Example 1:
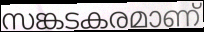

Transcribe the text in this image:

സങ്കടകരമാണ്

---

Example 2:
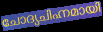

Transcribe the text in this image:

ചോദ്യചിഹ്നമായി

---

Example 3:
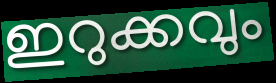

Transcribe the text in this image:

ഇറുക്കവും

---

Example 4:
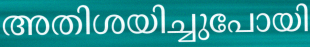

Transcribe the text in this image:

അതിശയിച്ചുപോയി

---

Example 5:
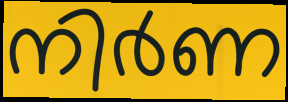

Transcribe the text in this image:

നിർണ